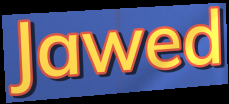
Jawed